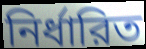
নির্ধারিত